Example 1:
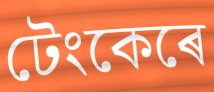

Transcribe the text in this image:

টেংকেৰে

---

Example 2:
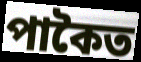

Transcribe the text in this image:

পাকৈত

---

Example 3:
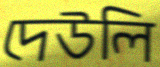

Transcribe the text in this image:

দেউলি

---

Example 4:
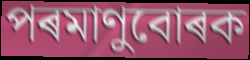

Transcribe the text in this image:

পৰমাণুবোৰক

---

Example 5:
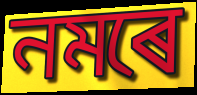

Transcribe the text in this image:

নমৰে